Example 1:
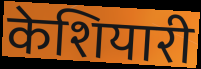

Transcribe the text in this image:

केशियारी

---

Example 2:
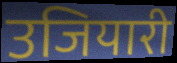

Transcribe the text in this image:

उजियारी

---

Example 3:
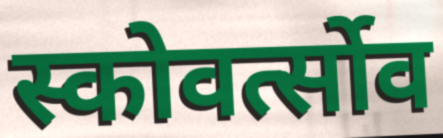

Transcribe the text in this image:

स्कोवर्त्सोव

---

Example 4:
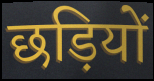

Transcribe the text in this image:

छड़ियों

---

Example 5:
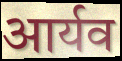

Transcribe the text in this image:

आर्यव